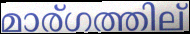
മാര്ഗത്തില്